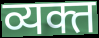
व्यक्‍त